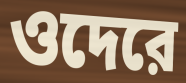
ওদেরে